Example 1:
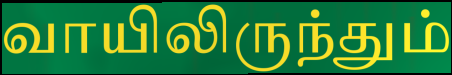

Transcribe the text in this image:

வாயிலிருந்தும்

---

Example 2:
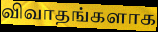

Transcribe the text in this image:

விவாதங்களாக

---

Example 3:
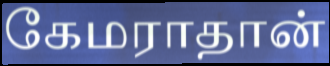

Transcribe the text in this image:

கேமராதான்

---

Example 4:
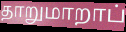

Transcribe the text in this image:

தாறுமாறாப்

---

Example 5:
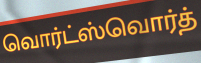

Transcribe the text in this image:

வொர்ட்ஸ்வொர்த்